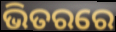
ଭିତରରେ